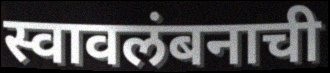
स्वावलंबनाची